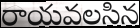
రాయవలసిన